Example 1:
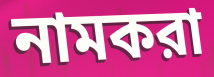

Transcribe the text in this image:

নামকরা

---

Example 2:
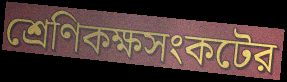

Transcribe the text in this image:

শ্রেণিকক্ষসংকটের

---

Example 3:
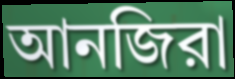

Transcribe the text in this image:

আনজিরা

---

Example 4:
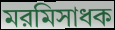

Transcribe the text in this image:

মরমিসাধক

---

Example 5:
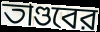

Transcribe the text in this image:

তাণ্ডবের